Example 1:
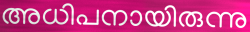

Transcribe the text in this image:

അധിപനായിരുന്നു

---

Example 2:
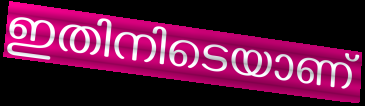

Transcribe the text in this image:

ഇതിനിടെയാണ്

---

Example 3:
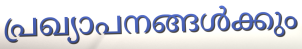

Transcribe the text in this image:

പ്രഖ്യാപനങ്ങൾക്കും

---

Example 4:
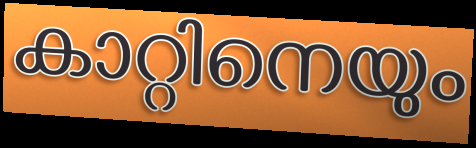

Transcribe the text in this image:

കാറ്റിനെയും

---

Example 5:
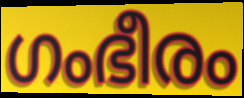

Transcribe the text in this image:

ഗംഭീരം